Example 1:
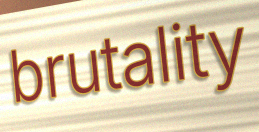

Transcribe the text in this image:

brutality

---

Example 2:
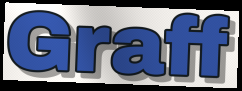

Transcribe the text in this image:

Graff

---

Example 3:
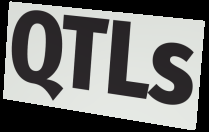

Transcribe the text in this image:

QTLs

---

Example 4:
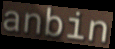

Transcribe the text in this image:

anbin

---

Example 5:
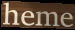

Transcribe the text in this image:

heme